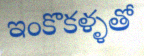
ఇంకొకళ్ళతో